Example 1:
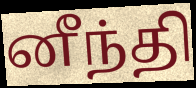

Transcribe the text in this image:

னீந்தி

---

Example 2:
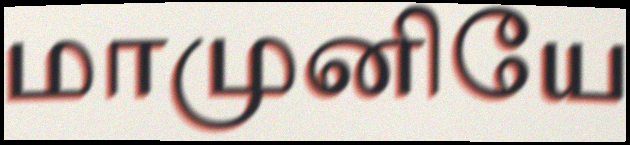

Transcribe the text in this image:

மாமுனியே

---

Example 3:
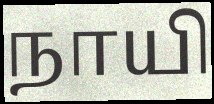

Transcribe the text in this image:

நாயி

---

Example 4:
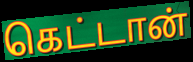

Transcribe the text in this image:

கெட்டான்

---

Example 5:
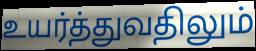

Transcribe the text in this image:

உயர்த்துவதிலும்